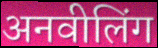
अनवीलिंग